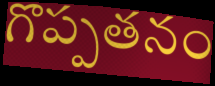
గొప్పతనం